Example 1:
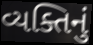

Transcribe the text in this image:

વ્યક્તિનું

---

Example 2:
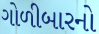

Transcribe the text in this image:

ગોળીબારનો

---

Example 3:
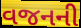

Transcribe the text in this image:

વજનની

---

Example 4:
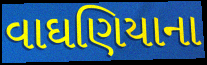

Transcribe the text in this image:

વાઘણિયાના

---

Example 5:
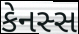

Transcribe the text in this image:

કેનસ્સ